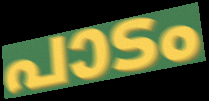
പാടം